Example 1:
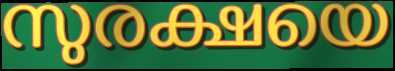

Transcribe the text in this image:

സുരക്ഷയെ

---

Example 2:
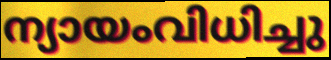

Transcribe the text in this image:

ന്യായംവിധിച്ചു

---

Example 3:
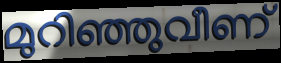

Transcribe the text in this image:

മുറിഞ്ഞുവീണ്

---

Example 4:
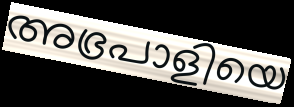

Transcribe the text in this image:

അഭ്രപാളിയെ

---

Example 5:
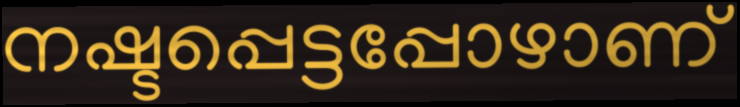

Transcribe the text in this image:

നഷ്ടപ്പെട്ടപ്പോഴാണ്